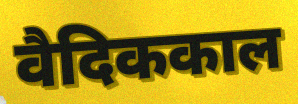
वैदिककाल